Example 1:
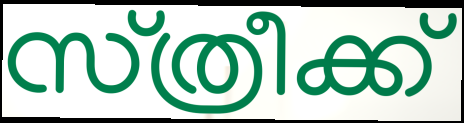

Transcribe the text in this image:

സ്‌ത്രീക്ക്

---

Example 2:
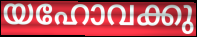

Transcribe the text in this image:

യഹോവക്കു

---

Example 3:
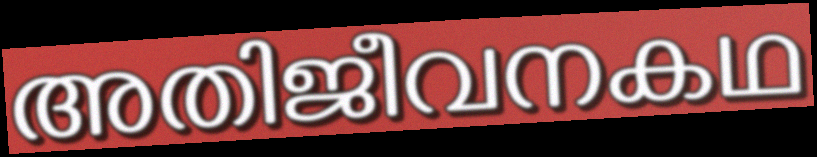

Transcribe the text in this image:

അതിജീവനകഥ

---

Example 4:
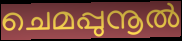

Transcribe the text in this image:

ചെമപ്പുനൂൽ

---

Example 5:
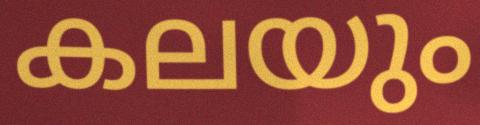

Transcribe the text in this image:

കലയും